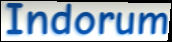
Indorum